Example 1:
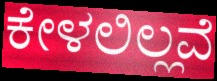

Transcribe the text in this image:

ಕೇಳಲಿಲ್ಲವೆ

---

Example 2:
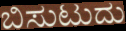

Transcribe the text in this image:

ಬಿಸುಟುದು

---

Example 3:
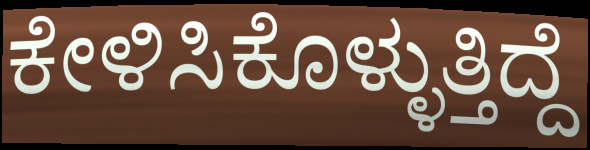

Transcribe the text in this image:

ಕೇಳಿಸಿಕೊಳ್ಳುತ್ತಿದ್ದೆ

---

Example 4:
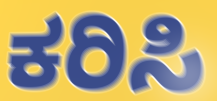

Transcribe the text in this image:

ಕರಿಸಿ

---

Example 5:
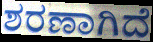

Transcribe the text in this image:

ಶರಣಾಗಿದೆ